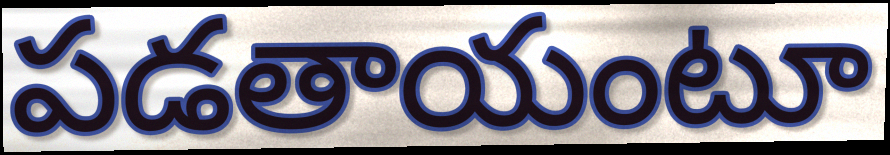
పడతాయంటూ